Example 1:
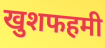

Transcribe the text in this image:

खुशफहमी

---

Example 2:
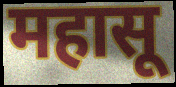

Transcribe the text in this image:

महासू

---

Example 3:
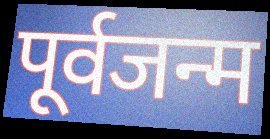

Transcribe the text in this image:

पूर्वजन्‍म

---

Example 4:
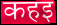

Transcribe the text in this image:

कहइ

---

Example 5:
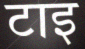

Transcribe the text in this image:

टाइ